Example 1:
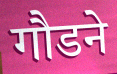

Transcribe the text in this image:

गौडने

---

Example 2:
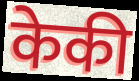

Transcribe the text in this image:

केकी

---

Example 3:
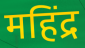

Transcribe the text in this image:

महिंद्र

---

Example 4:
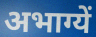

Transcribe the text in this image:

अभाग्यें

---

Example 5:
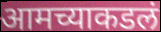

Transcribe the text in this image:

आमच्याकडलं